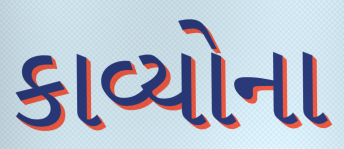
કાવ્યોના